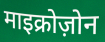
माइक्रोज़ोन